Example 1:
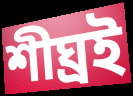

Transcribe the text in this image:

শীঘ্ৰই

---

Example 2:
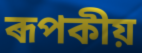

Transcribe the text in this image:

ৰূপকীয়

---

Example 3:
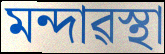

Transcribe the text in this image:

মন্দাৱস্থা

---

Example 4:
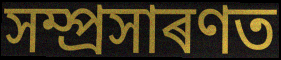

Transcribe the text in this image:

সম্প্ৰসাৰণত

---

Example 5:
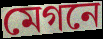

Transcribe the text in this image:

মেগনে